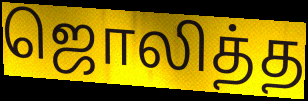
ஜொலித்த